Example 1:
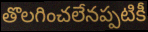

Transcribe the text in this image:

తొలగించలేనప్పటికీ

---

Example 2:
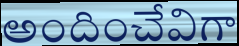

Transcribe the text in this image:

అందించేవిగా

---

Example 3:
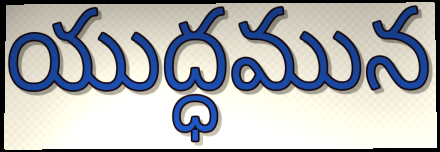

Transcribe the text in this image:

యుద్ధమున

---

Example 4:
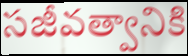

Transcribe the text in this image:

సజీవత్వానికి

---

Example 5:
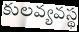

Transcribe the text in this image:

కులవ్యవస్థ